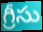
గ్రీసు